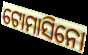
ଟୋମାସିନୋ